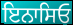
ਇਨਾਸਿਓ